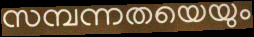
സമ്പന്നതയെയും